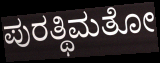
ಪುರತ್ಥಿಮತೋ